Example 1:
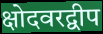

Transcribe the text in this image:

क्षोदवरद्वीप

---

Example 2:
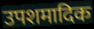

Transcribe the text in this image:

उपशमादिक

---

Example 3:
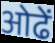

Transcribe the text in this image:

ओढें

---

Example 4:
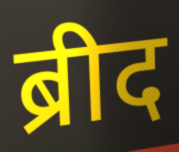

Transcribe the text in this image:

ब्रीद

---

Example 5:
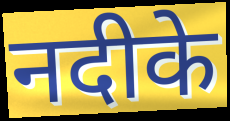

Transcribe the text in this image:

नदीके